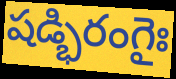
షడ్భిరంగైః